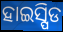
ହାଇସ୍ପିଡ